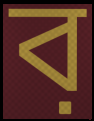
ব়